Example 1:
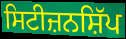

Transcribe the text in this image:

ਸਿਟੀਜ਼ਨਸ਼ਿੱਪ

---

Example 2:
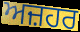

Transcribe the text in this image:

ਅਜ਼ਹਰ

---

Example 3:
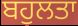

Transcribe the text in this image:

ਬਹੁਲਤਾ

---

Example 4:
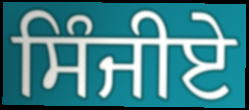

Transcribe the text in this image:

ਸਿੰਜੀਏ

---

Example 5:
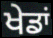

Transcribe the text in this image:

ਖੇਡਾਂ